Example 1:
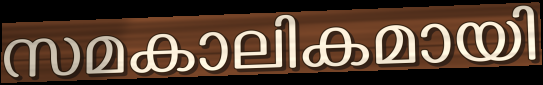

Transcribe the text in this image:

സമകാലികമായി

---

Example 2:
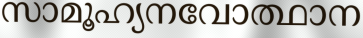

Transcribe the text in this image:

സാമൂഹ്യനവോത്ഥാന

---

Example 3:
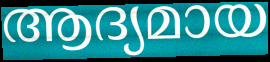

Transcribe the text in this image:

ആദ്യമായ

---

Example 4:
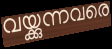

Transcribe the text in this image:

വയ്ക്കുന്നവരെ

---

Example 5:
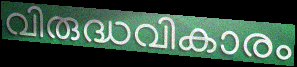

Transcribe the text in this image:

വിരുദ്ധവികാരം